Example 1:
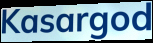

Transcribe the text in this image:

Kasargod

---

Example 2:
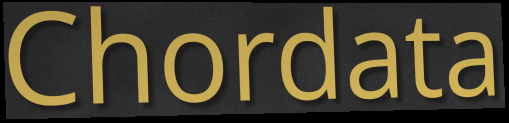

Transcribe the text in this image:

Chordata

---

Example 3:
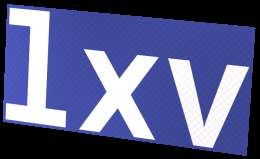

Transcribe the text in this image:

lxv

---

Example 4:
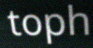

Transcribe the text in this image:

toph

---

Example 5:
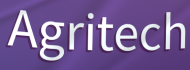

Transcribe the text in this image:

Agritech